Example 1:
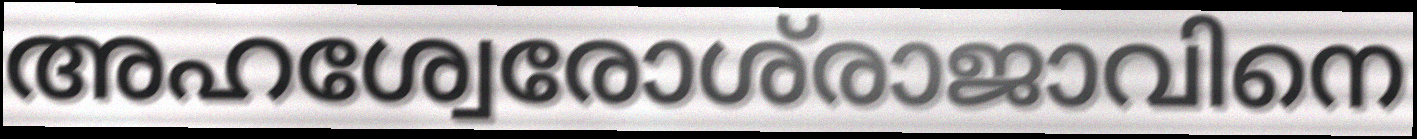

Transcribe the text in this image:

അഹശ്വേരോശ്‌രാജാവിനെ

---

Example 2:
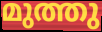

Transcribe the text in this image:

മുത്തു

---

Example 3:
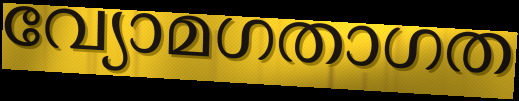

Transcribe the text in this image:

വ്യോമഗതാഗത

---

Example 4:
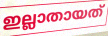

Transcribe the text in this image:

ഇല്ലാതായത്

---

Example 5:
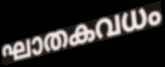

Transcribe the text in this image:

ഘാതകവധം